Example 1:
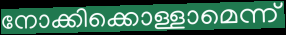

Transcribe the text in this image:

നോക്കിക്കൊള്ളാമെന്ന്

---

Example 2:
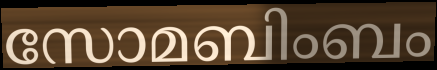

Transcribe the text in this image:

സോമബിംബം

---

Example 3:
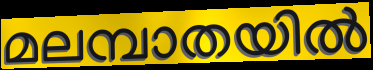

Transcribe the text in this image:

മലമ്പാതയിൽ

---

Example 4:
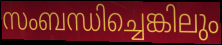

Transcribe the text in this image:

സംബന്ധിച്ചെങ്കിലും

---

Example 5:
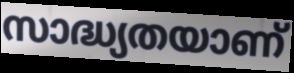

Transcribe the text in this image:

സാദ്ധ്യതയാണ്